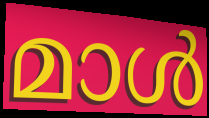
മാൾ